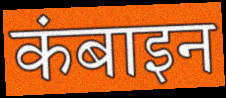
कंबाइन